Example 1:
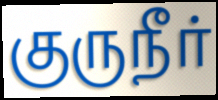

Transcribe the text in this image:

குருநீர்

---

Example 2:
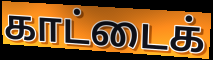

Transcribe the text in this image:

காட்டைக்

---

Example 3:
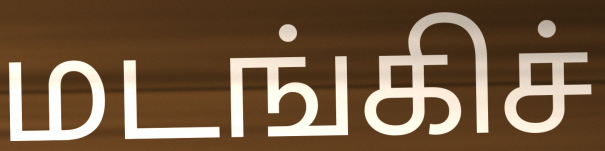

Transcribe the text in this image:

மடங்கிச்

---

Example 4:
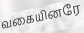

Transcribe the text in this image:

வகையினரே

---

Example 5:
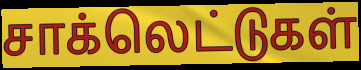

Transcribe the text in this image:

சாக்லெட்டுகள்